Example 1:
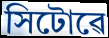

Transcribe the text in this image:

সিটোৱে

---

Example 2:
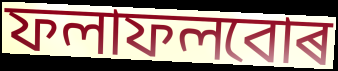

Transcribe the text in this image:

ফলাফলবোৰ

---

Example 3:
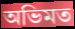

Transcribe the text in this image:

অভিমত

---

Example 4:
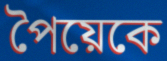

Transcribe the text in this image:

পৈয়েকে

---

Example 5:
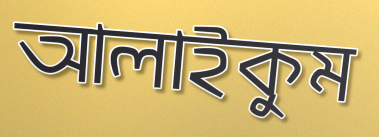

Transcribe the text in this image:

আলাইকুম